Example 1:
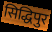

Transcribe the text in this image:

सिद्धिपुर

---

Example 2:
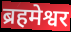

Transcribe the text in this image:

ब्रहमेश्वर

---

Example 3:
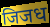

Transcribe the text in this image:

जिजध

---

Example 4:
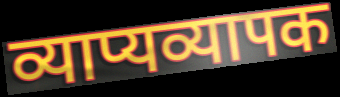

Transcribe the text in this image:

व्याप्यव्यापक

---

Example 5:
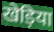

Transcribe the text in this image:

खेड़िया